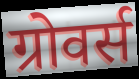
ग्रोवर्स